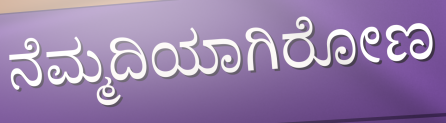
ನೆಮ್ಮದಿಯಾಗಿರೋಣ